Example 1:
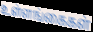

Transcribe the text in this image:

உள்ளங்கைகள்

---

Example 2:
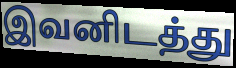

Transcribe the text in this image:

இவனிடத்து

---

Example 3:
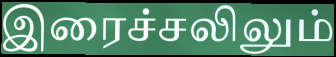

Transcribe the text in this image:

இரைச்சலிலும்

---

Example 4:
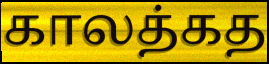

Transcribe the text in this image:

காலத்கத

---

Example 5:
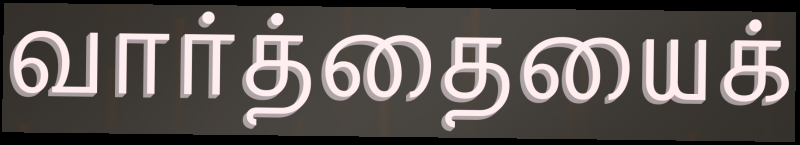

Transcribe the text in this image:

வார்த்தையைக்